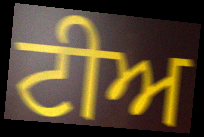
ਟੀਅ